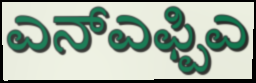
ಎನ್ಎಫ್ಪಿಎ